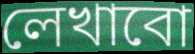
লেখাবো